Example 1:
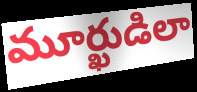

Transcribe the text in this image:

మూర్ఖుడిలా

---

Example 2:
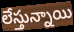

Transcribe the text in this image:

లేస్తున్నాయి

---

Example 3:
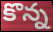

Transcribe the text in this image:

కొన్న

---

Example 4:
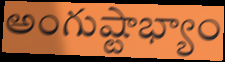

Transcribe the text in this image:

అంగుష్టాభ్యాం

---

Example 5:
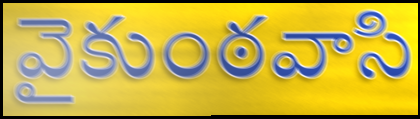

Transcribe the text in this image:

వైకుంఠవాసి